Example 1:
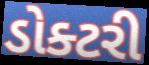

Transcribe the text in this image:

ડોક્ટરી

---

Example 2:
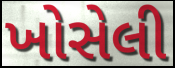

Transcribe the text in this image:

ખોસેલી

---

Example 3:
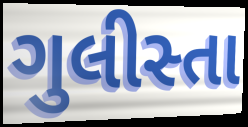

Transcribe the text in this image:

ગુલીસ્તા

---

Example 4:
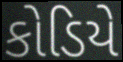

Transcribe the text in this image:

કોડિયે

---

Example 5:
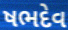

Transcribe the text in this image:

ષભદેવ